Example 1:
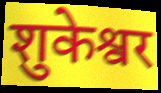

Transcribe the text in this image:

शुकेश्वर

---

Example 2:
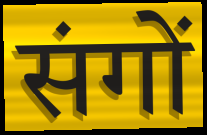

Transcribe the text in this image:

संगों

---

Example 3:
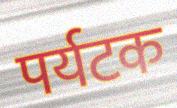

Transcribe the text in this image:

पर्यटक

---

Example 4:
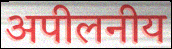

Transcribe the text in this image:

अपीलनीय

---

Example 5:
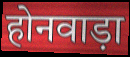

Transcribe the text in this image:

होनवाड़ा